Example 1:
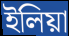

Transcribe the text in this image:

ইলিয়া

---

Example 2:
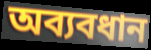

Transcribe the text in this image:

অব্যবধান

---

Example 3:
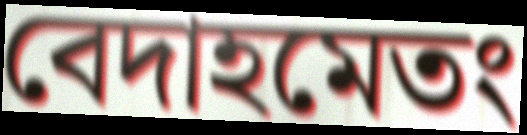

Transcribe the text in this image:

বেদাহমেতং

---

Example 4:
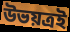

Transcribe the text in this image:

উভয়ত্রই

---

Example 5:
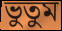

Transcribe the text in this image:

ভুতুম